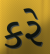
કરે